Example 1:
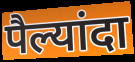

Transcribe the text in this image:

पैल्यांदा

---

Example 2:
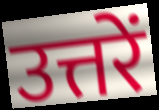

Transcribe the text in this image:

उत्तरें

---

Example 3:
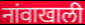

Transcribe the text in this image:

नांवाखाली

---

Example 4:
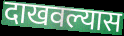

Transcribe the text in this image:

दाखवल्यास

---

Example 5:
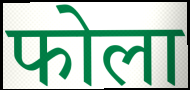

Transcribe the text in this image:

फोला